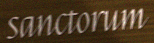
sanctorum